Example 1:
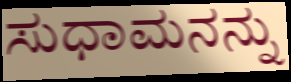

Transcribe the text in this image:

ಸುಧಾಮನನ್ನು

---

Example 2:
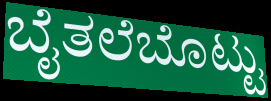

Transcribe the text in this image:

ಬೈತಲೆಬೊಟ್ಟು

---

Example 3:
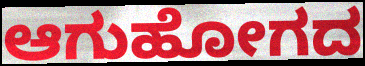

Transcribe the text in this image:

ಆಗುಹೋಗದ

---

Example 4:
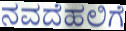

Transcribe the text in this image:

ನವದೆಹಲಿಗೆ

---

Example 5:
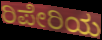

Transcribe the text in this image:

ರಿಪೇರಿಯ